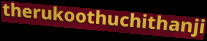
therukoothuchithanji